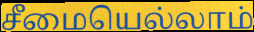
சீமையெல்லாம்